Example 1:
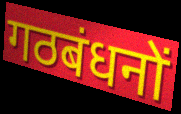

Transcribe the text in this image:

गठबंधनों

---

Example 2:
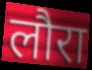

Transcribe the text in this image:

लौरा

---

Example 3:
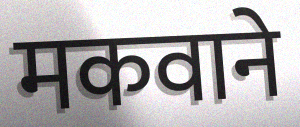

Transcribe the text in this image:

मकवाने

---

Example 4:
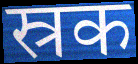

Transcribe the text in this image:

स्रक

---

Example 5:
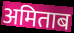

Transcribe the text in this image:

अमिताब